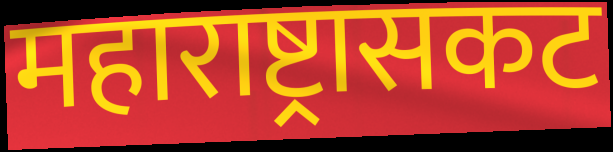
महाराष्ट्रासकट